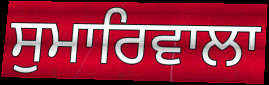
ਸੁਮਾਰਿਵਾਲਾ